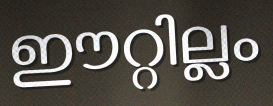
ഈറ്റില്ലം